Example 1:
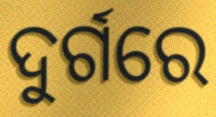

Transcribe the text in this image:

ଦୁର୍ଗରେ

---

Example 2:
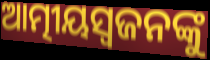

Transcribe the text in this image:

ଆତ୍ମୀୟସ୍ୱଜନଙ୍କୁ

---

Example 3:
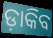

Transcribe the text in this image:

ଡ଼ାକିବ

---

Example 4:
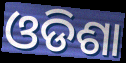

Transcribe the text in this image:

ଓଡିଶା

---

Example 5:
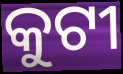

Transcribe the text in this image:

କୁଟୀ